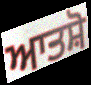
ਆਤਸ਼ੋ